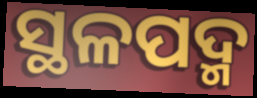
ସ୍ଥଳପଦ୍ମ